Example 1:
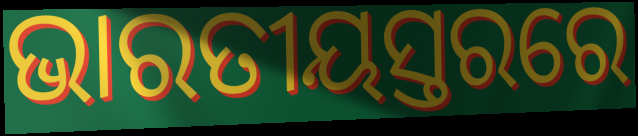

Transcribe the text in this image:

ଭାରତୀୟସ୍ତରରେ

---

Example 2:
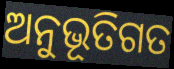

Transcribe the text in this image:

ଅନୁଭୂତିଗତ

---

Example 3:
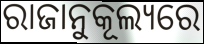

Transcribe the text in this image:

ରାଜାନୁକୂଲ୍ୟରେ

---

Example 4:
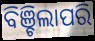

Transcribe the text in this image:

ବିଞ୍ଚିଲାପରି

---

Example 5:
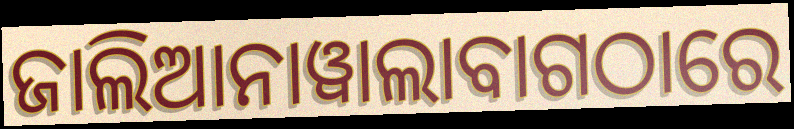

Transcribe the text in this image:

ଜାଲିଆନାୱାଲାବାଗଠାରେ